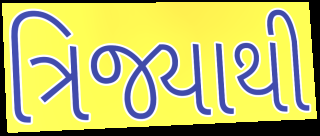
ત્રિજ્યાથી